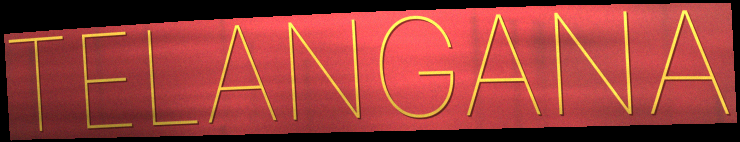
TELANGANA